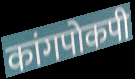
कांगपोकपी